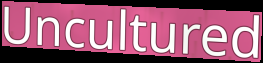
Uncultured